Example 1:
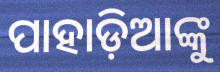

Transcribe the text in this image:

ପାହାଡ଼ିଆଙ୍କୁ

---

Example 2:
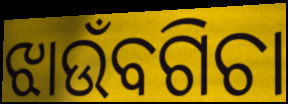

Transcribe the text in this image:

ଝାଉଁବଗିଚା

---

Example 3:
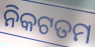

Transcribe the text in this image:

ନିକଟତମ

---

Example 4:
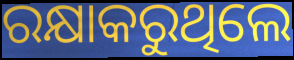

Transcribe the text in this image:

ରକ୍ଷାକରୁଥିଲେ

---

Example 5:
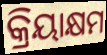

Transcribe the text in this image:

କ୍ରିୟାକ୍ଷମ